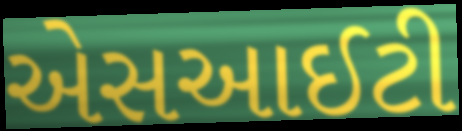
એસઆઈટી